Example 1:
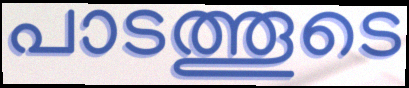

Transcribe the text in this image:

പാടത്തൂടെ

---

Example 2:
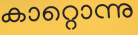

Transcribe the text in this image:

കാറ്റൊന്നു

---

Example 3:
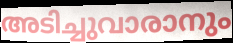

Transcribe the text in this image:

അടിച്ചുവാരാനും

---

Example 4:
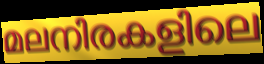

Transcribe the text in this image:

മലനിരകളിലെ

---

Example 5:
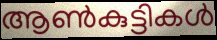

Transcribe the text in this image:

ആൺകുട്ടികൾ